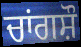
ਚਾਂਗਸ਼ੌ